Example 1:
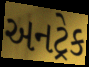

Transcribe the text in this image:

અનટ્રેક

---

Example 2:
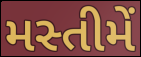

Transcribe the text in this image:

મસ્તીમેં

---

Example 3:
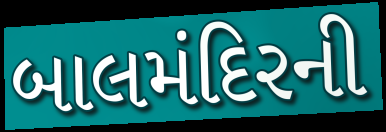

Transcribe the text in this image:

બાલમંદિરની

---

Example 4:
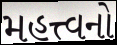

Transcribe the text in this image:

મહત્ત્વનો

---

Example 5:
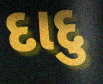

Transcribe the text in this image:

દાદુ